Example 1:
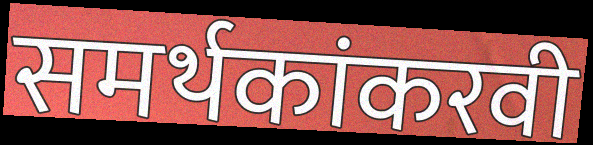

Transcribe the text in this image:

समर्थकांकरवी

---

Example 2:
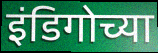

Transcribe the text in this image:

इंडिगोच्या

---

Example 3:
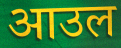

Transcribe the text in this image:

आउल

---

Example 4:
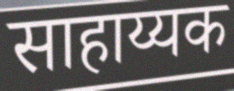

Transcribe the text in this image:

साहाय्यक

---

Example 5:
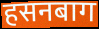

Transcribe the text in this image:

हसनबाग